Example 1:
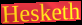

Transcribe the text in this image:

Hesketh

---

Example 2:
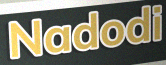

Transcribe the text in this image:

Nadodi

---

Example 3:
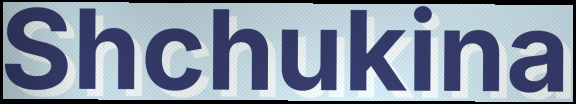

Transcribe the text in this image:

Shchukina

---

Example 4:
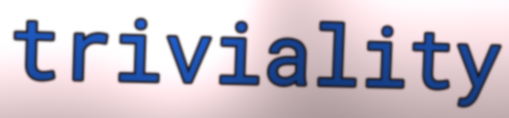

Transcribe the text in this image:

triviality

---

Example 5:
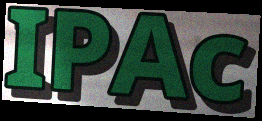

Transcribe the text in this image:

IPAc